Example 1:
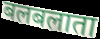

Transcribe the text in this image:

बलबलाता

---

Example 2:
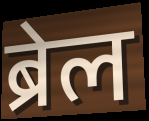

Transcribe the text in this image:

ब्रेल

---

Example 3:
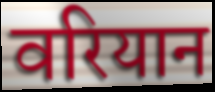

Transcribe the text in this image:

वरियान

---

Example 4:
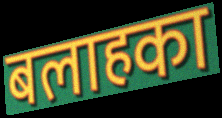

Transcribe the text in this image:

बलाहका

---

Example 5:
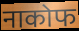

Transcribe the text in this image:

नाकोफ